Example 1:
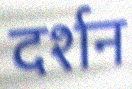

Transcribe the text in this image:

दर्शन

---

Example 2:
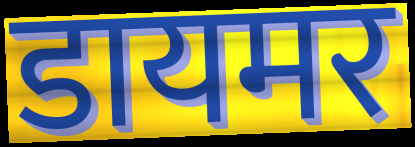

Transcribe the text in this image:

डायमर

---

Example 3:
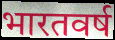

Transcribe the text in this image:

भारतवर्ष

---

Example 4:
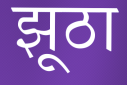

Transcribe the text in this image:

झूठा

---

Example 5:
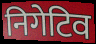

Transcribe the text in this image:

निगेटिव